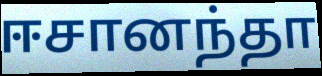
ஈசானந்தா